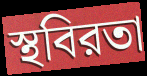
স্থবিরতা